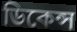
ডিকেন্স